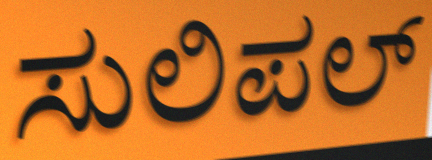
ಸುಲಿಪಲ್